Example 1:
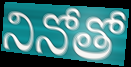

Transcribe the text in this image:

నినోతో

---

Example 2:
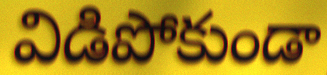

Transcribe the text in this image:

విడిపోకుండా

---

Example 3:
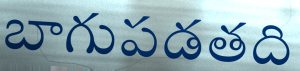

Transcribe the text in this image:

బాగుపడతది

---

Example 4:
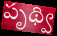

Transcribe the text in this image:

పృథ్వి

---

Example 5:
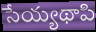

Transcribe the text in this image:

సేయ్యథాపి